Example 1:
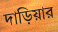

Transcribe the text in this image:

দাড়িয়ার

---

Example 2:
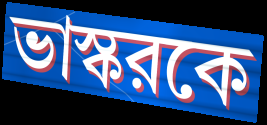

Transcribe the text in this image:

ভাস্করকে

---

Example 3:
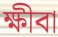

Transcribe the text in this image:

ক্ষীবা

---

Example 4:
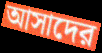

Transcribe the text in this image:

আসাদের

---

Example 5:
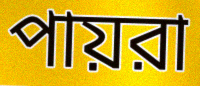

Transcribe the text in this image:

পায়রা